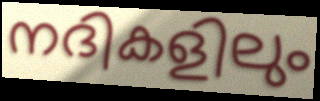
നദികളിലും